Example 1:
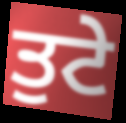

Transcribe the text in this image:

ਤੁਟੇ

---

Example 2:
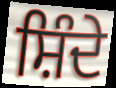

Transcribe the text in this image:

ਸ਼ਿੰਦੇ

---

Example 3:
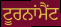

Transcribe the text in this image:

ਟੂਰਨਾਂਮੈਂਟ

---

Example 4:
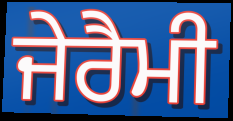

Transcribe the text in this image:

ਜੇਰੈਮੀ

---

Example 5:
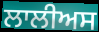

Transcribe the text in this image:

ਲਾਲੀਅਸ